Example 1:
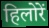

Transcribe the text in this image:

हिलोरें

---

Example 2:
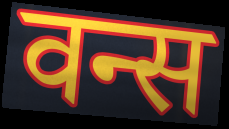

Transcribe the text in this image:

वन्स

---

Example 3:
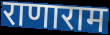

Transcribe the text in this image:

राणाराम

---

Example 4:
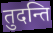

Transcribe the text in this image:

तुदन्ति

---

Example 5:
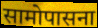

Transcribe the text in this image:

सामोपासना